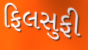
ફિલસુફી